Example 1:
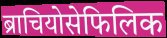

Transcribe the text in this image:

ब्राचियोसेफिलिक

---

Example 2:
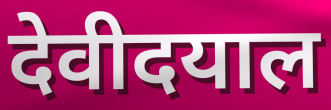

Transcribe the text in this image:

देवीदयाल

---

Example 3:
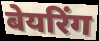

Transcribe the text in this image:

बेयरिंग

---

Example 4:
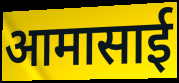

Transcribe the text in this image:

आमासाई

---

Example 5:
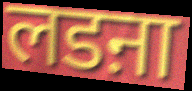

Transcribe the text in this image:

लडऩा